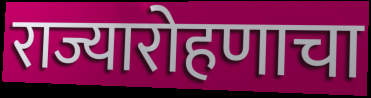
राज्यारोहणाचा